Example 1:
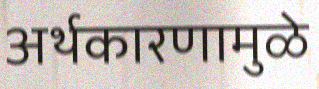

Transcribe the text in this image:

अर्थकारणामुळे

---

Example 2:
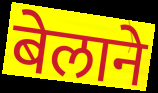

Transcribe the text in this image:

बेलाने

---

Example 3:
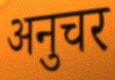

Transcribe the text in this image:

अनुचर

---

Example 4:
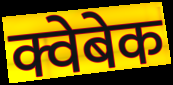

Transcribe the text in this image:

क्वेबेक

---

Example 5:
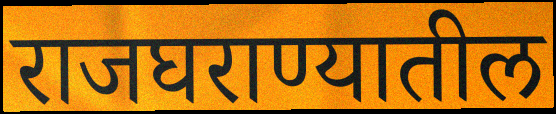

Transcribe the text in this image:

राजघराण्यातील